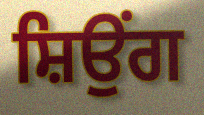
ਸ਼ਿਉਂਗ